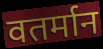
वतर्मान